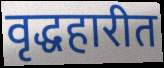
वृद्धहारीत